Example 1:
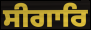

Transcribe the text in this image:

ਸੀਗਾਰਿ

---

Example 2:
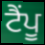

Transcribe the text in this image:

ਟੈਂਪੂ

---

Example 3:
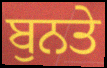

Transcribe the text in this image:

ਬੁਨਤੇ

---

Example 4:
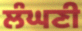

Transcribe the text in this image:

ਲੰਘਣੀ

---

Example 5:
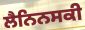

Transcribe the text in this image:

ਲੈਨਿਨਸਕੀ